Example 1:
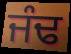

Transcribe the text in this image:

ਜੰਢ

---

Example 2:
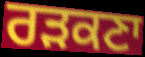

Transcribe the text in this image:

ਰੜਕਣਾ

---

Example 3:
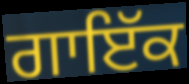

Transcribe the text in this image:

ਗਾਇੱਕ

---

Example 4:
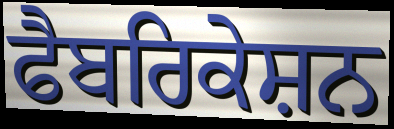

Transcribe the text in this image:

ਫੈਬਰਿਕੇਸ਼ਨ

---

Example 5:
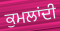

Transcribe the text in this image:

ਕੁਮਲਾਂਦੀ